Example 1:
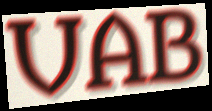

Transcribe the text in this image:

UAB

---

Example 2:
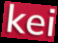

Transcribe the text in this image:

kei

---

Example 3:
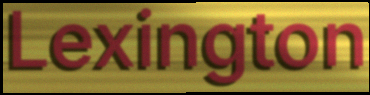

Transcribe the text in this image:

Lexington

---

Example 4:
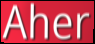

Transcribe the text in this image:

Aher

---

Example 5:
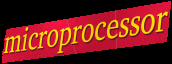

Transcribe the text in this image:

microprocessor